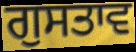
ਗੁਸਤਾਵ